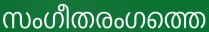
സംഗീതരംഗത്തെ